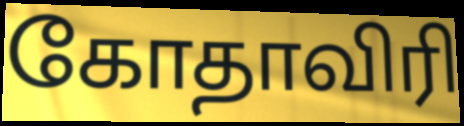
கோதாவிரி